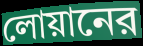
লোয়ানের